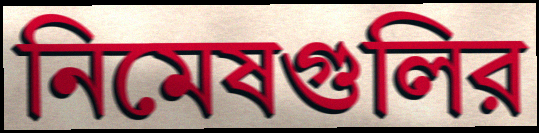
নিমেষগুলির